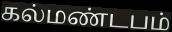
கல்மண்டபம்